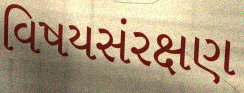
વિષયસંરક્ષણ